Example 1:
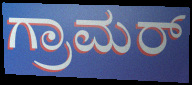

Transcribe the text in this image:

ಗ್ರಾಮರ್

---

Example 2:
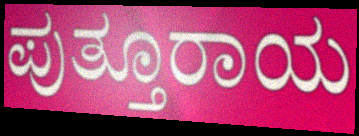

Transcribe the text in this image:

ಪುತ್ತೂರಾಯ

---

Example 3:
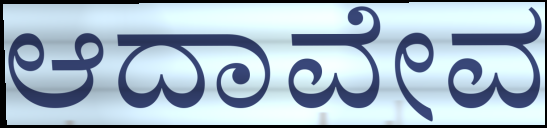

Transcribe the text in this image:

ಆದಾವೇವ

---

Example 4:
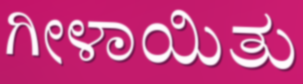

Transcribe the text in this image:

ಗೀಳಾಯಿತು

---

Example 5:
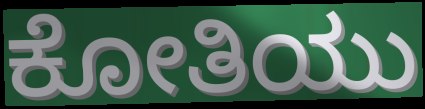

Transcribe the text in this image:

ಕೋತಿಯು